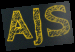
AJS